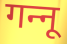
गन्नू